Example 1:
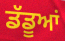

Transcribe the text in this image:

ਡੱਡੂਆਂ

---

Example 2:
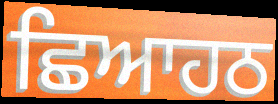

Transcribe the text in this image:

ਛਿਆਹਠ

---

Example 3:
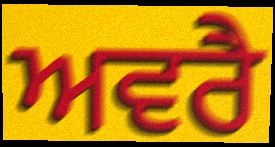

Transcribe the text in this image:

ਅਵਰੈ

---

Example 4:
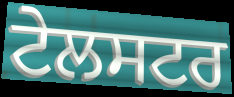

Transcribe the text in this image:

ਟੇਲਸਟਰ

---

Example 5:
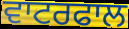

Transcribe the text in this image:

ਵਾਟਰਫਾਲ